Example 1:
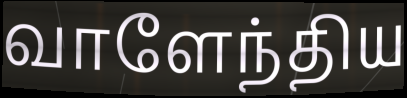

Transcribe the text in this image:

வாளேந்திய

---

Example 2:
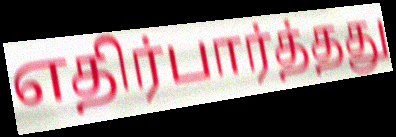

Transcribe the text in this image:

எதிர்பார்த்தது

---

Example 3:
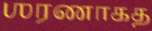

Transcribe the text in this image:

ஶரணாகத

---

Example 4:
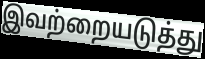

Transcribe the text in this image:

இவற்றையடுத்து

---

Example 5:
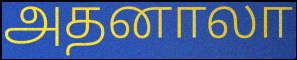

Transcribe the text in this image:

அதனாலா